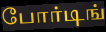
போர்டிங்